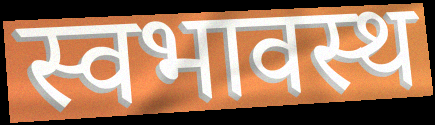
स्वभावस्थ